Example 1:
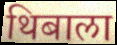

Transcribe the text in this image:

थिबाला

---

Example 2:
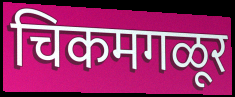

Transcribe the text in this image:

चिकमगळूर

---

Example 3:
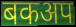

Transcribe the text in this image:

बकअप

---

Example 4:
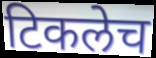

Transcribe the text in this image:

टिकलेच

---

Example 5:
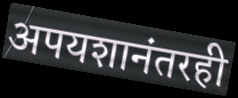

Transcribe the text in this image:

अपयशानंतरही